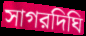
সাগরদিঘি